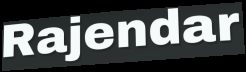
Rajendar